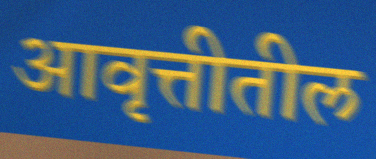
आवृत्तीतील